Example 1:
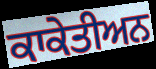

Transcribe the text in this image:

ਕਾਕੇਤੀਅਨ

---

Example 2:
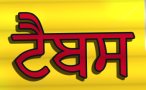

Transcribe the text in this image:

ਟੈਬਸ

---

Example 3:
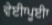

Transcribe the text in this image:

ਵੇਈਾਪੂਈਾ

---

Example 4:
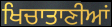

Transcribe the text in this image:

ਖਿਚਾਤਾਣੀਆਂ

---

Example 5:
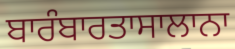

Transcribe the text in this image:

ਬਾਰੰਬਾਰਤਾਸਾਲਾਨਾ